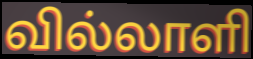
வில்லாளி